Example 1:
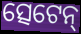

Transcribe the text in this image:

ତ୍ସେଟେନ୍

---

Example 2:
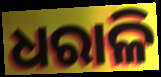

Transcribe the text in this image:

ଧରାଳି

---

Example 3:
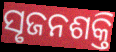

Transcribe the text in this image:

ସୃଜନଶକ୍ତି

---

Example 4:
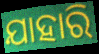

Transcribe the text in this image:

ଯାହାରି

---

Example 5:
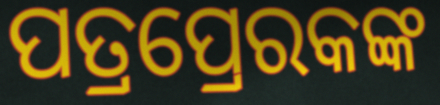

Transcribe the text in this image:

ପତ୍ରପ୍ରେରକଙ୍କ